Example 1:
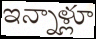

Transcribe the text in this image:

ఇన్నాళ్లూ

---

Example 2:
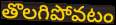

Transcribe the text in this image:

తొలగిపోవటం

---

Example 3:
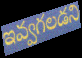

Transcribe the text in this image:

ఇవ్వగలడని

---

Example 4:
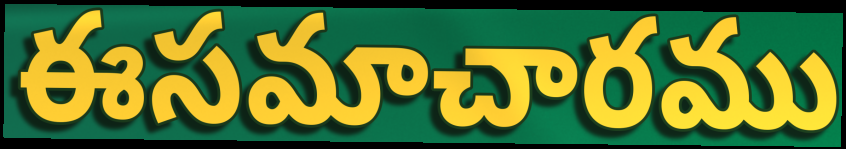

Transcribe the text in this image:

ఈసమాచారము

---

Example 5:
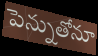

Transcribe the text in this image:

పెన్నుతోనూ